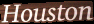
Houston